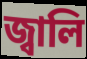
জ্বালি